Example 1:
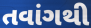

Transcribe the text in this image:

તવાંગથી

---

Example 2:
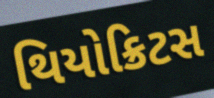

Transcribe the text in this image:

થિયોક્રિટસ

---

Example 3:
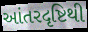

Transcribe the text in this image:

આંતરદૃષ્ટિથી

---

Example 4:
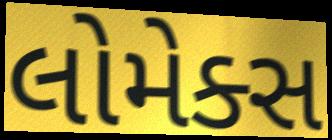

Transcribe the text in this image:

લોમેક્સ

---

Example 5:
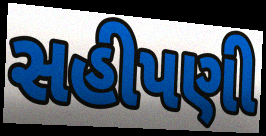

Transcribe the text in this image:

સહીપણી